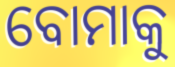
ବୋମାକୁ